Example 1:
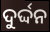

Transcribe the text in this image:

ଦୁର୍ଦ୍ଦନ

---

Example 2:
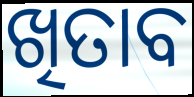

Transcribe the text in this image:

ଖିତାବ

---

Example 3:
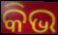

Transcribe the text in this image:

କିଭ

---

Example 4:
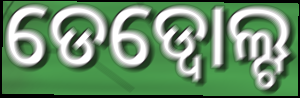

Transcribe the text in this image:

ଡେଡ୍ବୋଲ୍ଟ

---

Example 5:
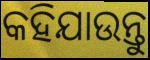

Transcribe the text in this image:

କହିଯାଉନ୍ତୁ